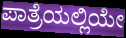
ಪಾತ್ರೆಯಲ್ಲಿಯೇ